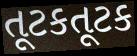
તૂટકતૂટક